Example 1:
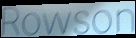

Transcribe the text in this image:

Rowson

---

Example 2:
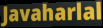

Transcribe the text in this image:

Javaharlal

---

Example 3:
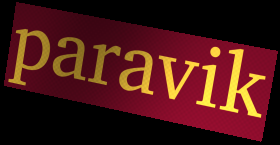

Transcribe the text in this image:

paravik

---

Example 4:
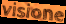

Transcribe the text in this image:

visione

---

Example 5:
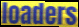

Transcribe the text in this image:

loaders